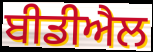
ਬੀਡੀਐਲ